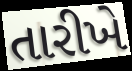
તારીખે